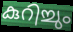
കുറിച്ചും